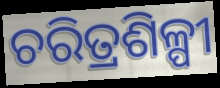
ଚରିତ୍ରଶିଳ୍ପୀ